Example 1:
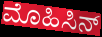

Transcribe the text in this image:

ಮೊಹಿಸಿನ್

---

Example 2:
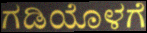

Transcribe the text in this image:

ಗಡಿಯೊಳಗೆ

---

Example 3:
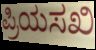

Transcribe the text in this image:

ಪ್ರಿಯಸಖಿ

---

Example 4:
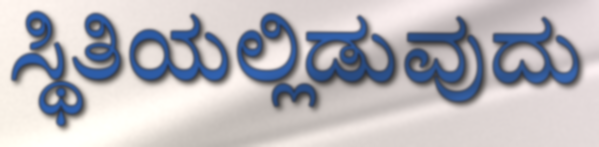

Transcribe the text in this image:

ಸ್ಥಿತಿಯಲ್ಲಿಡುವುದು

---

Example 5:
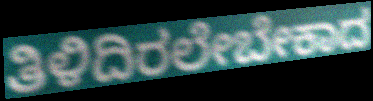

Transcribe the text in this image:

ತಿಳಿದಿರಲೇಬೇಕಾದ